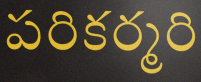
పరికర్మరి